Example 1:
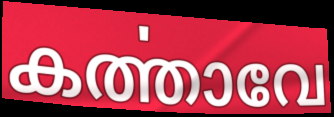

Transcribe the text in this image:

കൎത്താവേ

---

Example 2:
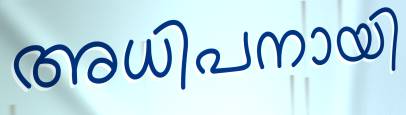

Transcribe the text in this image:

അധിപനായി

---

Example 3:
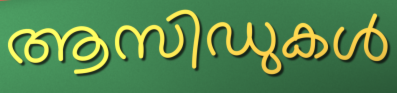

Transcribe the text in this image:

ആസിഡുകൾ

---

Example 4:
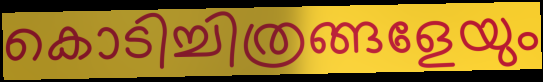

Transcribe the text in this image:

കൊടിച്ചിത്രങ്ങളേയും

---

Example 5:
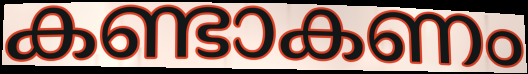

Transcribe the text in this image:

കണ്ടാകണം